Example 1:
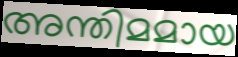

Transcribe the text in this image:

അന്തിമമായ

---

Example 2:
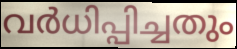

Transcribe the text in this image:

വർധിപ്പിച്ചതും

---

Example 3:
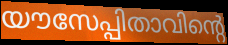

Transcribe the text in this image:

യൗസേപ്പിതാവിന്റെ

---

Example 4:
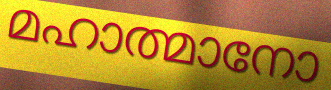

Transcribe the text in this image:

മഹാത്മാനോ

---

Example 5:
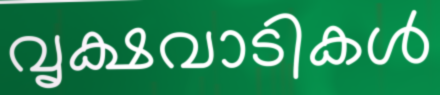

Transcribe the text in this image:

വൃക്ഷവാടികൾ